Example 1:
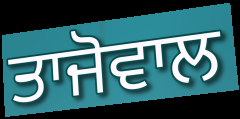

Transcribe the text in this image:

ਤਾਜੋਵਾਲ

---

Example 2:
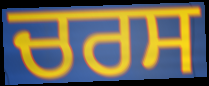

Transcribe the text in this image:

ਚਰਸ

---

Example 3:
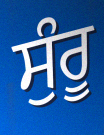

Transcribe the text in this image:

ਸੁੰਰੂ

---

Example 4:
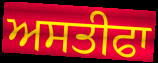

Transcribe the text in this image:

ਅਸਤੀਫਾ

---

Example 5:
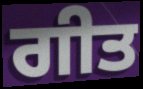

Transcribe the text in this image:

ਗੀਤ